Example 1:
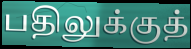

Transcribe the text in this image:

பதிலுக்குத்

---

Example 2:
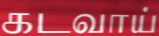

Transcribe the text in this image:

கடவாய்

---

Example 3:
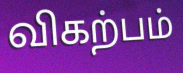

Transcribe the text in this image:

விகற்பம்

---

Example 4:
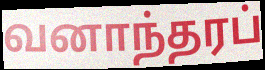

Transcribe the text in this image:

வனாந்தரப்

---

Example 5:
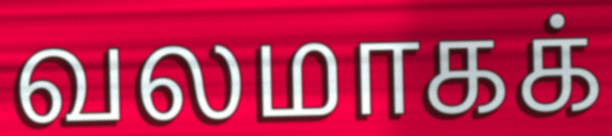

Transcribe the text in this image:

வலமாகக்